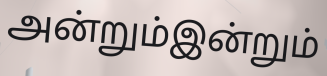
அன்றும்இன்றும்